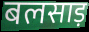
बलसाड़